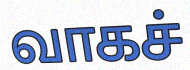
வாகச்